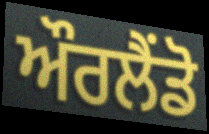
ਔਰਲੈਂਡੋ